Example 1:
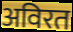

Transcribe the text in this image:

अविरत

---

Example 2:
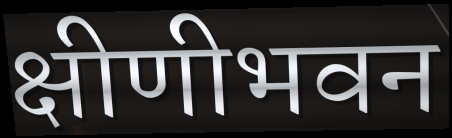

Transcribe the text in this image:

क्षीणीभवन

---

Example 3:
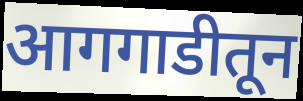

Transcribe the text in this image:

आगगाडीतून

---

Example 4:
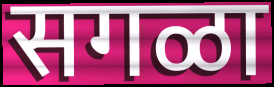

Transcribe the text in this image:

सगळा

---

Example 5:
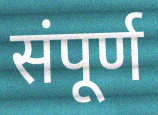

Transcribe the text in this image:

संपूर्ण